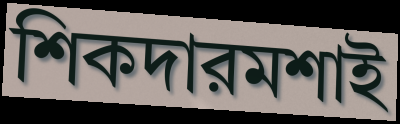
শিকদারমশাই